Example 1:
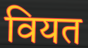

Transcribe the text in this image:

वियत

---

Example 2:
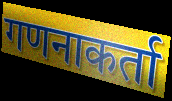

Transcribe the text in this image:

गणनाकर्ता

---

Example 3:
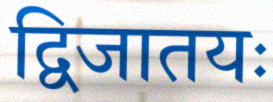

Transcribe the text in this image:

द्विजातयः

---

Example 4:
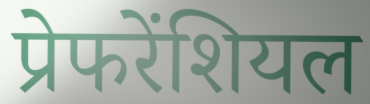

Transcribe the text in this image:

प्रेफरेंशियल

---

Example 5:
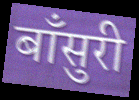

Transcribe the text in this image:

बाँसुरी